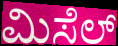
ಮಿಸೆಲ್